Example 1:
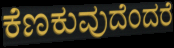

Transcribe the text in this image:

ಕೆಣಕುವುದೆಂದರೆ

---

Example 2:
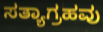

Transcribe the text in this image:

ಸತ್ಯಾಗ್ರಹವು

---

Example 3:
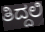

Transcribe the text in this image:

ತಿದ್ದಲಿ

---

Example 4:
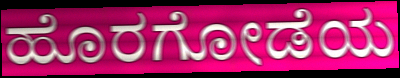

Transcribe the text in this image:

ಹೊರಗೋಡೆಯ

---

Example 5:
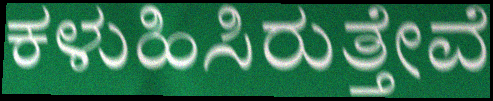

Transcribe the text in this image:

ಕಳುಹಿಸಿರುತ್ತೇವೆ